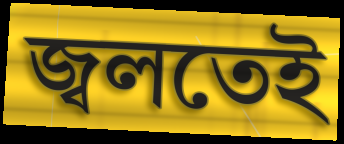
জ্বলতেই